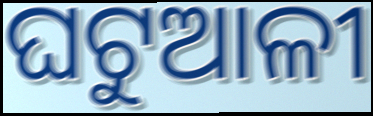
ଘଟୁଆଳୀ